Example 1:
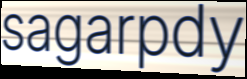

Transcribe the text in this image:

sagarpdy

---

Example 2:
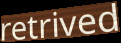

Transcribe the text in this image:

retrived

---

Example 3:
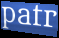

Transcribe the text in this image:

patr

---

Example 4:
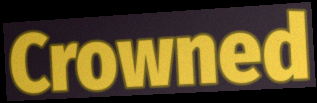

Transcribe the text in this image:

Crowned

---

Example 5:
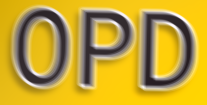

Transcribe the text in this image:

OPD